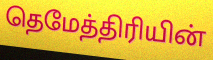
தெமேத்திரியின்